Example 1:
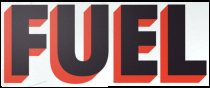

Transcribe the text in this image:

FUEL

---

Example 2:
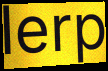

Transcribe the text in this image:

lerp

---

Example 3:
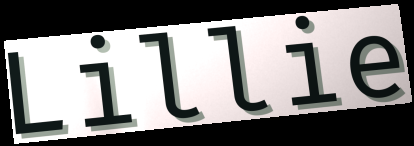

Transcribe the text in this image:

Lillie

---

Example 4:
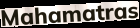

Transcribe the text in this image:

Mahamatras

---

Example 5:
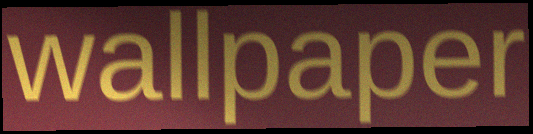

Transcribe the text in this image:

wallpaper